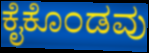
ಕೈಕೊಂಡವು